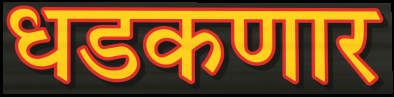
धडकणार